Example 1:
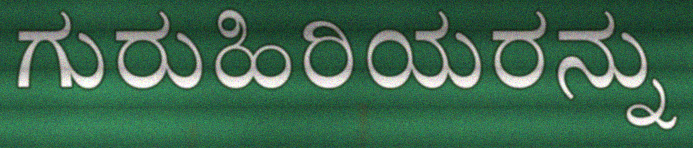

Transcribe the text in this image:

ಗುರುಹಿರಿಯರನ್ನು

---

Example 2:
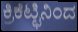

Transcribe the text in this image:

ಕ್ರಿಕೆಟ್ಟಿನಿಂದ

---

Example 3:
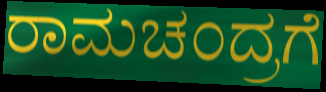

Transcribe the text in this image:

ರಾಮಚಂದ್ರಗೆ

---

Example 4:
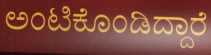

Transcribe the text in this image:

ಅಂಟಿಕೊಂಡಿದ್ದಾರೆ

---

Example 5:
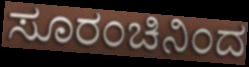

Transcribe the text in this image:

ಸೂರಂಚಿನಿಂದ